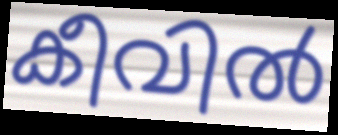
കീവിൽ